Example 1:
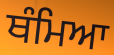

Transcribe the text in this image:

ਥੰਮਿਆ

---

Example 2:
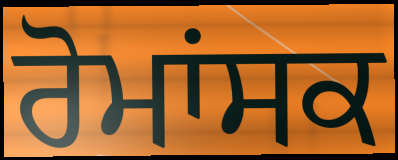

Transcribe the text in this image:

ਰੋਮਾਂਸਕ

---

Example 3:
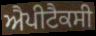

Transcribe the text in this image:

ਐਪੀਟੈਕਸੀ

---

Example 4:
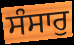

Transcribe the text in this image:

ਸੰਸਾਰੁ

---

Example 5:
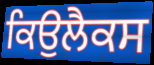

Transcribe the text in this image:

ਕਿਉਲੈਕਸ